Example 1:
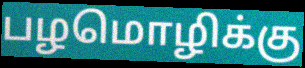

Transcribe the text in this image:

பழமொழிக்கு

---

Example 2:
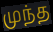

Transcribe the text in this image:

முந்த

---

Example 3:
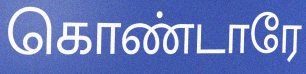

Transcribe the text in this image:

கொண்டாரே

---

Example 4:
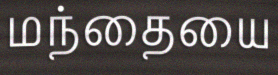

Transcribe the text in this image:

மந்தையை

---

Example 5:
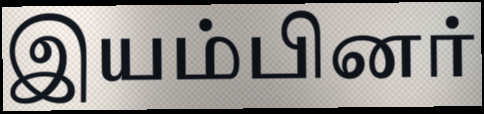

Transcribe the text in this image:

இயம்பினர்